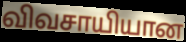
விவசாயியான